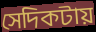
সেদিকটায়